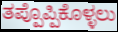
ತಪ್ಪೊಪ್ಪಿಕೊಳ್ಳಲು